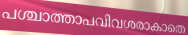
പശ്ചാത്താപവിവശരാകാതെ